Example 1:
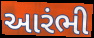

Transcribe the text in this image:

આરંભી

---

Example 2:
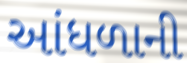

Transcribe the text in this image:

આંધળાની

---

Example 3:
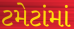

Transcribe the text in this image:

ટમેટાંમાં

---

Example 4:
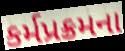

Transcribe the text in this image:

કર્મપ્રક્રમના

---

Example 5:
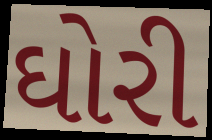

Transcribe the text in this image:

ઘોરી